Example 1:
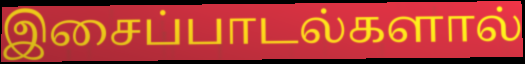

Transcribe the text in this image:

இசைப்பாடல்களால்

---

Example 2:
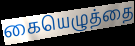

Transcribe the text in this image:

கையெழுத்தை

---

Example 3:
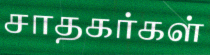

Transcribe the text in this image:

சாதகர்கள்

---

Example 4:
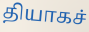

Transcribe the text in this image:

தியாகச்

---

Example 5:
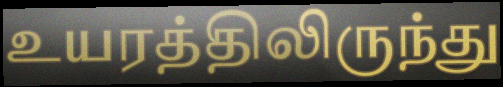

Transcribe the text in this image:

உயரத்திலிருந்து